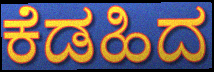
ಕೆಡಹಿದ